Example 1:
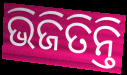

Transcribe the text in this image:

ଭିଜିତିନ୍ତି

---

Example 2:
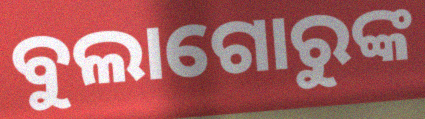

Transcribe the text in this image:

ବୁଲାଗୋରୁଙ୍କ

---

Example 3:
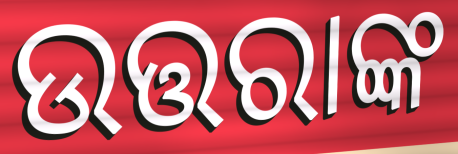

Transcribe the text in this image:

ଉତ୍ତରାଙ୍କ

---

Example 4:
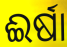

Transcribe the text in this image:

ଈର୍ଷା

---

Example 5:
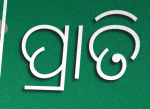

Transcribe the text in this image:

ପ୍ରାତି